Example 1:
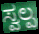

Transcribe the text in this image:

ಸ್ವಲ್ಪ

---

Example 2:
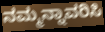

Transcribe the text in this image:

ನಮ್ಮನ್ನಾವರಿಸಿ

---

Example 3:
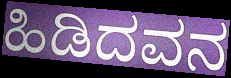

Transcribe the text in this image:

ಹಿಡಿದವನ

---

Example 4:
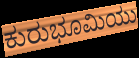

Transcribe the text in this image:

ಕುರುಭೂಮಿಯು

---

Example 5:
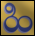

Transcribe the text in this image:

ಹಿ